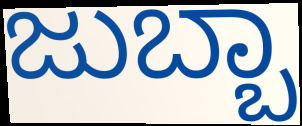
ಜುಬ್ಬಾ